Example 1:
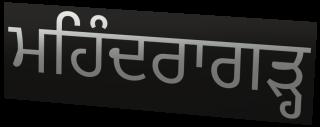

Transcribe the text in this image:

ਮਹਿੰਦਰਾਗੜ੍ਹ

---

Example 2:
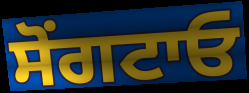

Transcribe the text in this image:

ਸੋਂਗਟਾਓ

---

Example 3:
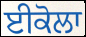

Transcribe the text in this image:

ਈਕੋਲਾ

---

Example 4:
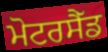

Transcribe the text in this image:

ਮੋਟਰਸੈੱਡ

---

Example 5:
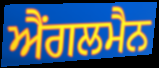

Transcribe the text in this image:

ਐਂਗਲਮੈਨ